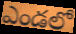
ఎండలో